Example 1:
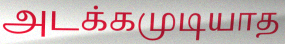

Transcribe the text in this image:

அடக்கமுடியாத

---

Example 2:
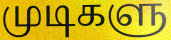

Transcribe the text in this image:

முடிகளு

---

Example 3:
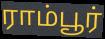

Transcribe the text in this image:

ராம்பூர்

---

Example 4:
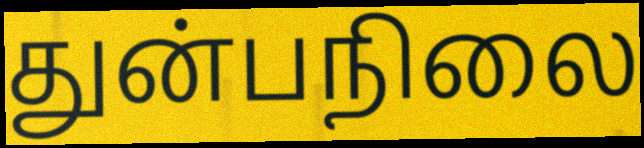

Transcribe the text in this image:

துன்பநிலை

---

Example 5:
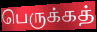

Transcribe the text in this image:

பெருக்கத்